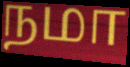
நமா